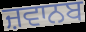
ਜ਼ਵਾਨਬ